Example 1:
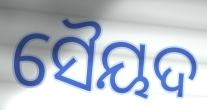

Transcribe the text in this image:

ସୈୟଦ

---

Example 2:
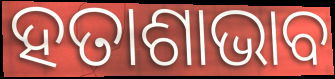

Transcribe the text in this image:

ହତାଶାଭାବ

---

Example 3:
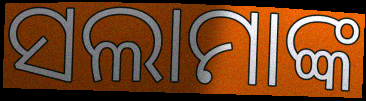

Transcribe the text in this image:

ସଲାମାଙ୍କ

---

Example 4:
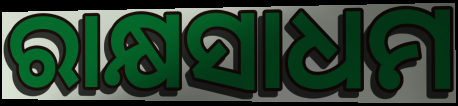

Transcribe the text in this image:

ରାକ୍ଷସାଧମ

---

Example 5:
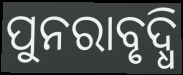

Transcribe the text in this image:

ପୁନରାବୃଦ୍ଧି